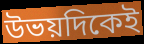
উভয়দিকেই